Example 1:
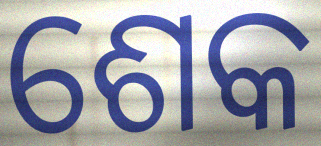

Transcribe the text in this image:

ଶେକ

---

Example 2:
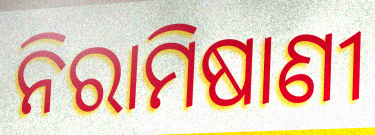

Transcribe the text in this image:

ନିରାମିଷାଣୀ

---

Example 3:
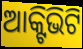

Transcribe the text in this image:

ଆକ୍ଟିଭିଟି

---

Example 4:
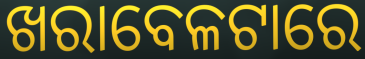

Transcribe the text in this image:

ଖରାବେଳଟାରେ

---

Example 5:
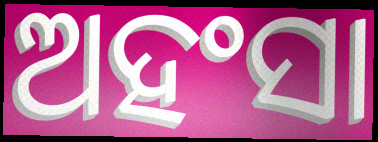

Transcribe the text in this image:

ଅହଂସା